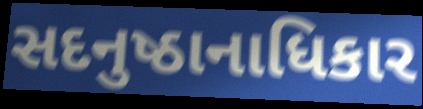
સદનુષ્ઠાનાધિકાર